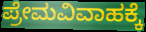
ಪ್ರೇಮವಿವಾಹಕ್ಕೆ